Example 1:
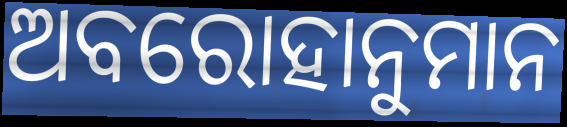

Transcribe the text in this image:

ଅବରୋହାନୁମାନ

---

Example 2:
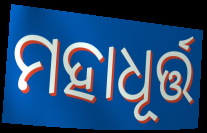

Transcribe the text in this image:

ମହାଧୂର୍ତ୍ତ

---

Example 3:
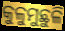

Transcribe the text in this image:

କୁଳୁମୁଛୁଳି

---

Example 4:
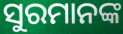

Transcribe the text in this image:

ସୁରମାନଙ୍କ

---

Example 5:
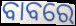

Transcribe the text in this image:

ବାବରେ